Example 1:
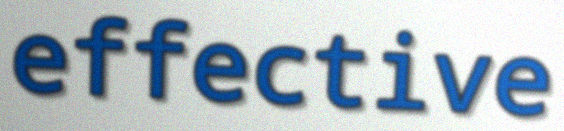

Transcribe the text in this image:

effective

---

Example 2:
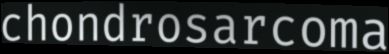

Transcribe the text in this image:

chondrosarcoma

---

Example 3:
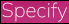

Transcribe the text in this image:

Specify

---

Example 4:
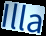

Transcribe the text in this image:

Illa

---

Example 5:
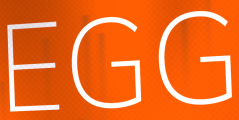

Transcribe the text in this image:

EGG